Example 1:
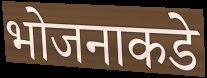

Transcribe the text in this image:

भोजनाकडे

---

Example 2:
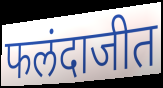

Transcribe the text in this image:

फलंदाजीत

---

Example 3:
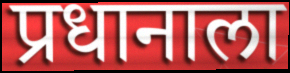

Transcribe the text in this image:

प्रधानाला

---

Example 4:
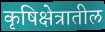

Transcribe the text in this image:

कृषिक्षेत्रातील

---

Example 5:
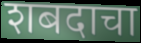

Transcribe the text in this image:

शबदाचा